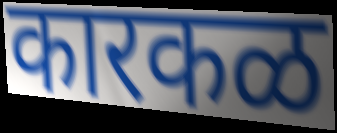
कारकळ